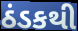
ઠંડકથી